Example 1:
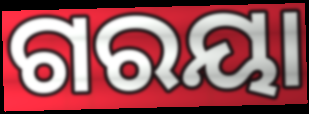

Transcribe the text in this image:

ଗରୟା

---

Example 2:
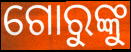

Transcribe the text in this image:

ଗୋରୁଙ୍କୁ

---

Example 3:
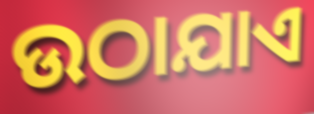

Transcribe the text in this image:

ଉଠାଯାଏ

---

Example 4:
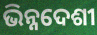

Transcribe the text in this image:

ଭିନ୍ନଦେଶୀ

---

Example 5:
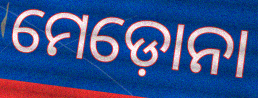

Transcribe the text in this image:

ମେଡ଼ୋନା